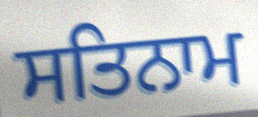
ਸਤਿਨਾਮ